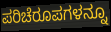
ಪರಿಚೆರೂಪಗಳನ್ನೂ